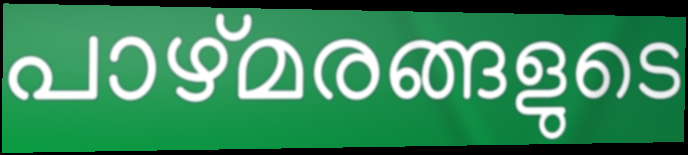
പാഴ്മരങ്ങളുടെ